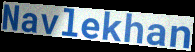
Navlekhan